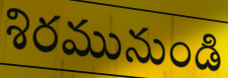
శిరమునుండి